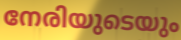
നേരിയുടെയും